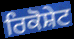
ਰਿਕੋਸ਼ੇਟ